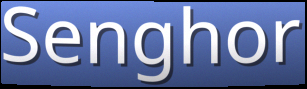
Senghor